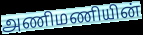
அணிமணியின்